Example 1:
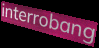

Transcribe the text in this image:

interrobang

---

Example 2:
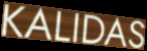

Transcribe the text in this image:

KALIDAS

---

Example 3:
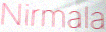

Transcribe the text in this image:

Nirmala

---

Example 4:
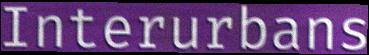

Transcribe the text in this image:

Interurbans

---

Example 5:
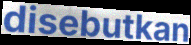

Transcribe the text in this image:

disebutkan